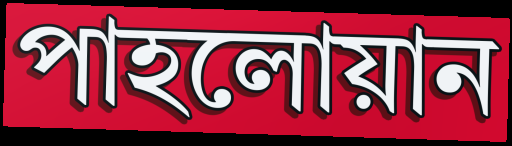
পাহলোয়ান